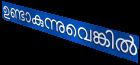
ഉണ്ടാകുന്നുവെങ്കിൽ